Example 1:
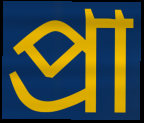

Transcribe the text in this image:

প্রা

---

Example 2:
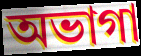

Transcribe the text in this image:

অভাগা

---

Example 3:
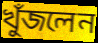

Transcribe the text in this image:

খুঁজলেন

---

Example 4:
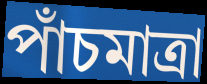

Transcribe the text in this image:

পাঁচমাত্রা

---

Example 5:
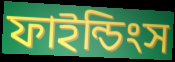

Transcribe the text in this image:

ফাইন্ডিংস